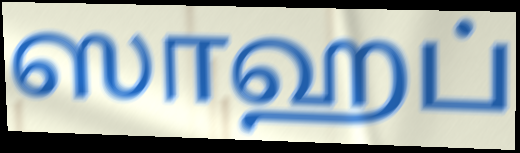
ஸாஹப்